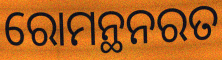
ରୋମନ୍ଥନରତ